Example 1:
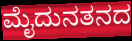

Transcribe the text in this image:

ಮೈದುನತನದ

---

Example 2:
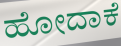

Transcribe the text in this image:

ಹೋದಾಕೆ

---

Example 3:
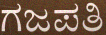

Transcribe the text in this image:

ಗಜಪತಿ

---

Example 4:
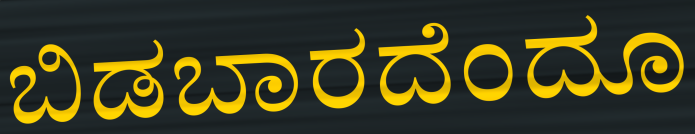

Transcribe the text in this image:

ಬಿಡಬಾರದೆಂದೂ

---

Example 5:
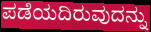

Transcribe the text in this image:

ಪಡೆಯದಿರುವುದನ್ನು